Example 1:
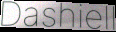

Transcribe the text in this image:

Dashiell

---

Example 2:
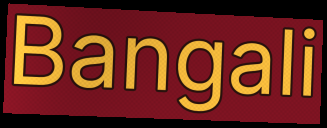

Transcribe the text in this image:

Bangali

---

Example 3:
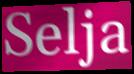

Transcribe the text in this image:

Selja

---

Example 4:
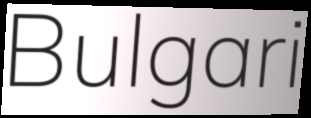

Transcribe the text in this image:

Bulgari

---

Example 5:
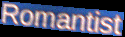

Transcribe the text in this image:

Romantist